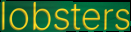
lobsters